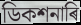
ডিকশনাৰি